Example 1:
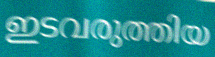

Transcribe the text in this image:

ഇടവരുത്തിയ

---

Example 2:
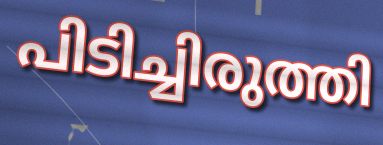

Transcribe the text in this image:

പിടിച്ചിരുത്തി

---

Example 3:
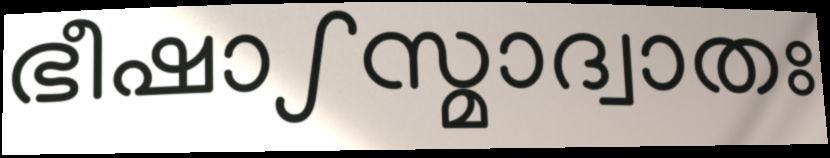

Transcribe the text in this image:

ഭീഷാഽസ്മാദ്വാതഃ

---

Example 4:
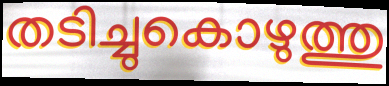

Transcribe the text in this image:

തടിച്ചുകൊഴുത്തു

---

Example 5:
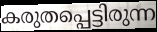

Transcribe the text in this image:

കരുതപ്പെട്ടിരുന്ന